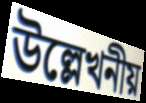
উল্লেখনীয়